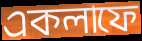
একলাফে